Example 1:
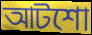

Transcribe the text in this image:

আটশো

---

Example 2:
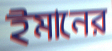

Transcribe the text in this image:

ইমানের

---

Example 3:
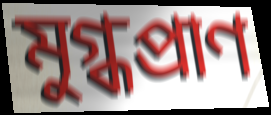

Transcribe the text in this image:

মুগ্ধপ্রাণ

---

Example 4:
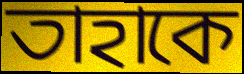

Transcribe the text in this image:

তাহাকে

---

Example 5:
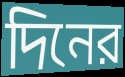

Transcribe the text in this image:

দিনের